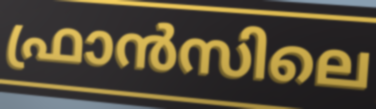
ഫ്രാൻസിലെ